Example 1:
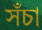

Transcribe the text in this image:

সঁচা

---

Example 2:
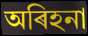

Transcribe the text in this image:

অৰিহনা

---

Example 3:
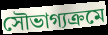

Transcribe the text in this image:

সৌভাগ্যক্ৰমে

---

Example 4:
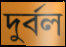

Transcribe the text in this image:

দুৰ্বল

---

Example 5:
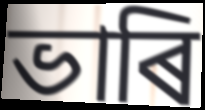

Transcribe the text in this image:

ভাৰি